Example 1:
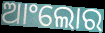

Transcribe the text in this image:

ଆଂଲୋର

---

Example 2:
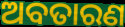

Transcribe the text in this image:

ଅବତାରଣ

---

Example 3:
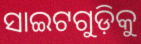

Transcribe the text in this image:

ସାଇଟଗୁଡ଼ିକୁ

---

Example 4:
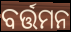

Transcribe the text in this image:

ବର୍ତ୍ତମନ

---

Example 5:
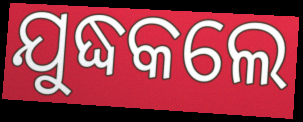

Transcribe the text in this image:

ଯୁଦ୍ଧକଲେ